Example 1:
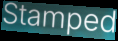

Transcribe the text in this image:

Stamped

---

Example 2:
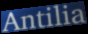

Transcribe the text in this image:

Antilia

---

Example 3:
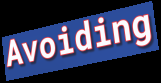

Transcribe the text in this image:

Avoiding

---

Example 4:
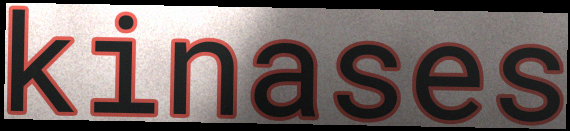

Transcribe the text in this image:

kinases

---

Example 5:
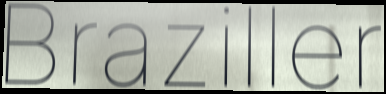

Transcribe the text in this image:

Braziller